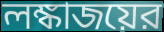
লঙ্কাজয়ের